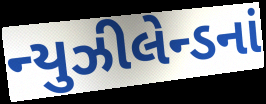
ન્યુઝીલેન્ડનાં